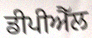
ਡੀਪੀਐੱਲ